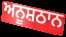
ਅਨੂਸ਼ਠਾਨ